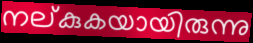
നല്കുകയായിരുന്നു